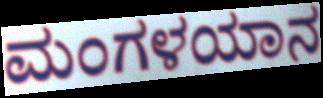
ಮಂಗಳಯಾನ